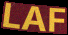
LAF